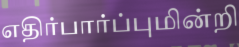
எதிர்பார்ப்புமின்றி